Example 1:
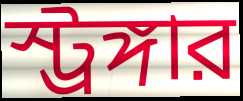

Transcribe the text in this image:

স্ট্রঙ্গার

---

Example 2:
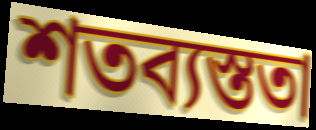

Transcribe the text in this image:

শতব্যস্ততা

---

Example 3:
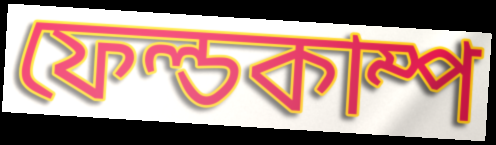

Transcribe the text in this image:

ফেল্ডকাম্প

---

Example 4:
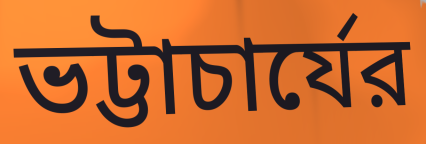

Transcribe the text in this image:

ভট্টাচার্যের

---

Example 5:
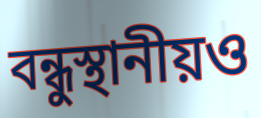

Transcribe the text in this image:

বন্ধুস্থানীয়ও